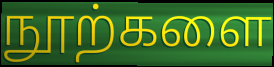
நூற்களை